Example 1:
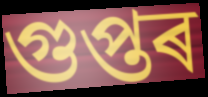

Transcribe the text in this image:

গুপ্তৰ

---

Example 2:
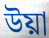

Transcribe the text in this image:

উয়া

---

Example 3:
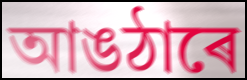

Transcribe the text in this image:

আঙঠাৰে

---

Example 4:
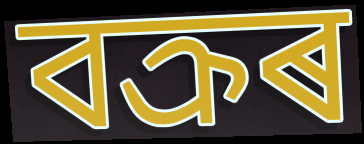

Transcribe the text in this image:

বক্ৰৰ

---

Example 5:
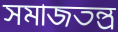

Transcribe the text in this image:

সমাজতন্ত্ৰ